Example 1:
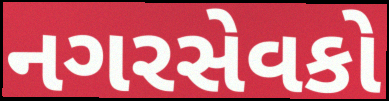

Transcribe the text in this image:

નગરસેવકો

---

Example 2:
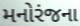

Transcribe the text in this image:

મનોરંજના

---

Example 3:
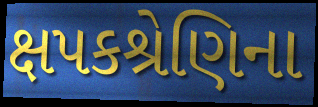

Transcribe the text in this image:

ક્ષપકશ્રેણિના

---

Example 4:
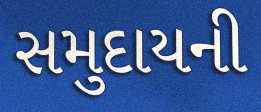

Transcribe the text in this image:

સમુદાયની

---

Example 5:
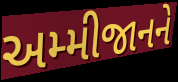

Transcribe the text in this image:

અમ્મીજાનને